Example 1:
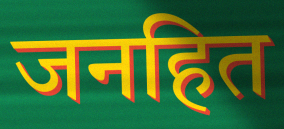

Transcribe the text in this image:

जनहित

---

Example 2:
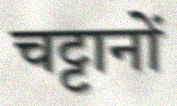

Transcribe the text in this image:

चट्टानों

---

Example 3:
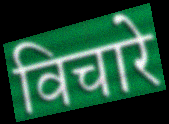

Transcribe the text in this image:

विचारे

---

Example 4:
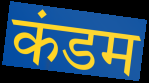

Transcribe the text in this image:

कंडम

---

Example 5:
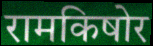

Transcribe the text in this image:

रामकिषोर